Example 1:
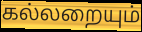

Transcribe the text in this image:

கல்லறையும்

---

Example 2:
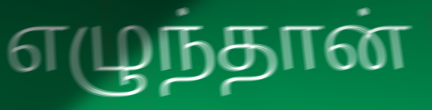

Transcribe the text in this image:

எழுந்தான்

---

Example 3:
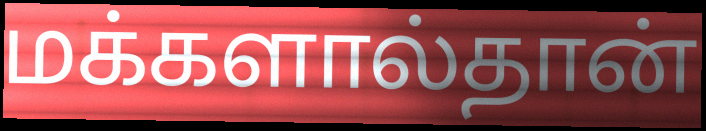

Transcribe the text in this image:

மக்களால்தான்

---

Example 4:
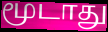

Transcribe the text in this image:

மூடாது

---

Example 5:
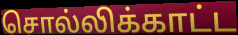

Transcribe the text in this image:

சொல்லிக்காட்ட